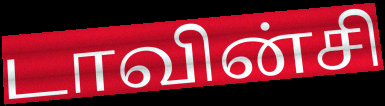
டாவின்சி